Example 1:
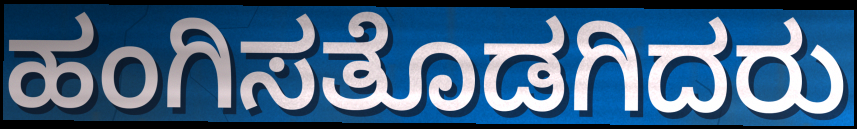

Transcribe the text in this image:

ಹಂಗಿಸತೊಡಗಿದರು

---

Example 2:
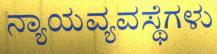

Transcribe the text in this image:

ನ್ಯಾಯವ್ಯವಸ್ಥೆಗಳು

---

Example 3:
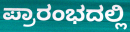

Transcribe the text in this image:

ಪ್ರಾರಂಭದಲ್ಲಿ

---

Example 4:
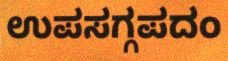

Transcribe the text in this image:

ಉಪಸಗ್ಗಪದಂ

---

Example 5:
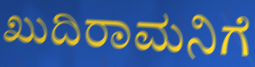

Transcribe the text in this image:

ಖುದಿರಾಮನಿಗೆ